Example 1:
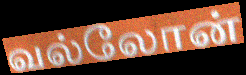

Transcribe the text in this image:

வல்லோன்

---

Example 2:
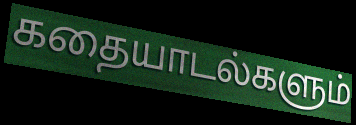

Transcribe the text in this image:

கதையாடல்களும்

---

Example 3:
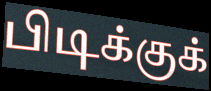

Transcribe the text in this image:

பிடிக்குக்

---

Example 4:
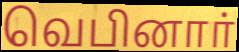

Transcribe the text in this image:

வெபினார்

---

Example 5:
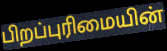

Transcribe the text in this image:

பிறப்புரிமையின்